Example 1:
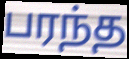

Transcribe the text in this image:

பரந்த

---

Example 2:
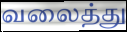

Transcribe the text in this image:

வலைத்து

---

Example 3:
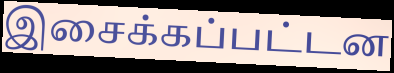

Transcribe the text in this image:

இசைக்கப்பட்டன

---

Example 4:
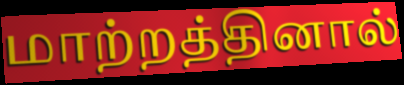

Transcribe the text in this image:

மாற்றத்தினால்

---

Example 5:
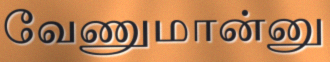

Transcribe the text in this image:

வேணுமான்னு